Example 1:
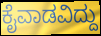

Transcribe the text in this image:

ಕೈವಾಡವಿದ್ದು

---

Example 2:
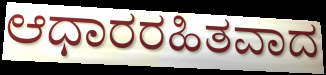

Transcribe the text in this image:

ಆಧಾರರಹಿತವಾದ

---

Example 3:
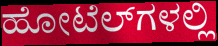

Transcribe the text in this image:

ಹೋಟೆಲ್‍ಗಳಲ್ಲಿ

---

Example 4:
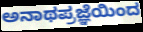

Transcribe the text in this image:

ಅನಾಥಪ್ರಜ್ಞೆಯಿಂದ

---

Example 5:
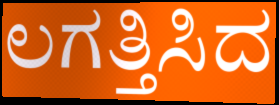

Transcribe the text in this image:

ಲಗತ್ತಿಸಿದ